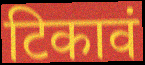
टिकावं